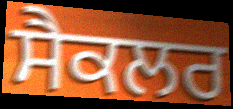
ਸੈਕਲਰ